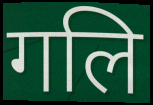
गलि